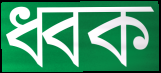
ধ্বক